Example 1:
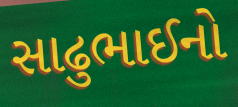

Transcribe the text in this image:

સાઢુભાઈનો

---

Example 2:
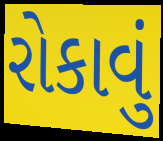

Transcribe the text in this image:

રોકાવું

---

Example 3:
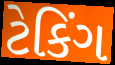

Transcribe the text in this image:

ટેકિંગ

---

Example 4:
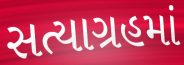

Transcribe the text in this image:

સત્યાગ્રહમાં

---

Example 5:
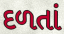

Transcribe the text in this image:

દળતાં